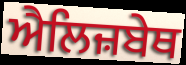
ਐਲਿਜ਼ਬੇਥ